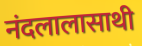
नंदलालासाथी